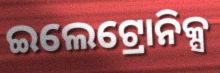
ଇଲେଟ୍ରୋନିକ୍ସ